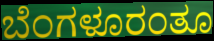
ಬೆಂಗಳೂರಂತೂ